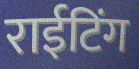
राईटिंग